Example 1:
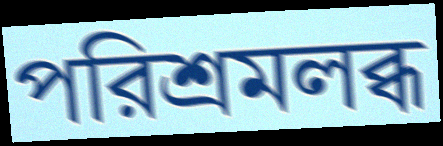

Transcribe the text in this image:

পরিশ্রমলব্ধ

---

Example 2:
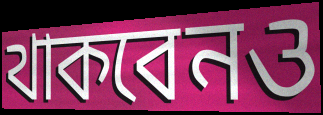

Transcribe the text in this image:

থাকবেনও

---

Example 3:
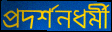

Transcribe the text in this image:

প্রদর্শনধর্মী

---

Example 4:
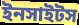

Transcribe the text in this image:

ইনসাইটস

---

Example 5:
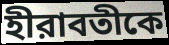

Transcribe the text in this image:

হীরাবতীকে